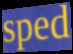
sped